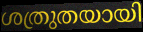
ശത്രുതയായി